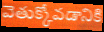
వెతుక్కోవడానికి